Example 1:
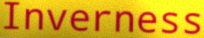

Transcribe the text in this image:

Inverness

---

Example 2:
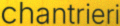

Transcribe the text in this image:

chantrieri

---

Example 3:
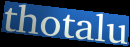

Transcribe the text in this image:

thotalu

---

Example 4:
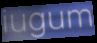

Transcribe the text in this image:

iugum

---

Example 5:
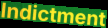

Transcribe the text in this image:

Indictment